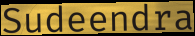
Sudeendra